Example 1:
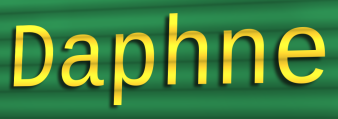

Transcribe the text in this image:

Daphne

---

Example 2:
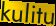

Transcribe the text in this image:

kulitu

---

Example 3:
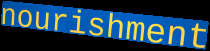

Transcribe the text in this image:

nourishment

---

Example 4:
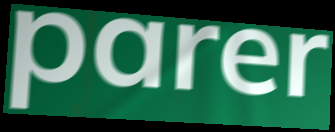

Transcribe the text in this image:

parer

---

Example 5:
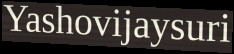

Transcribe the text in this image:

Yashovijaysuri